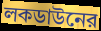
লকডাউনের